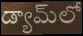
డ్యామ్‌లో